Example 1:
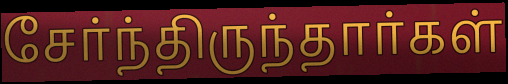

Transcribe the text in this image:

சேர்ந்திருந்தார்கள்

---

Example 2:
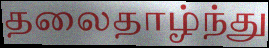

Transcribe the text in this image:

தலைதாழ்ந்து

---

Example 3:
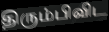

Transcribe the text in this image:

திரும்பிவிட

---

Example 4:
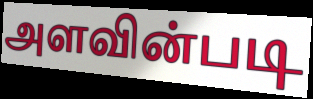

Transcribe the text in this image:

அளவின்படி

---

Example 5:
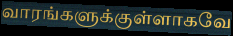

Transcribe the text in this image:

வாரங்களுக்குள்ளாகவே